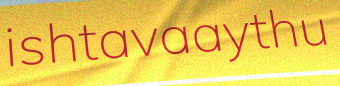
ishtavaaythu